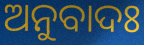
ଅନୁବାଦଃ